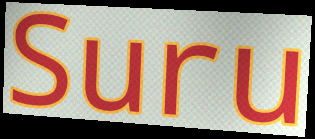
Suru